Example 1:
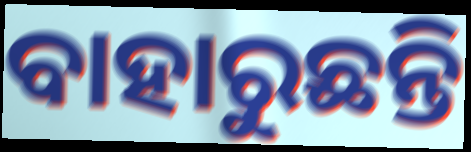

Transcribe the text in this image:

ବାହାରୁଛନ୍ତି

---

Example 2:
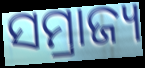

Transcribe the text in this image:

ସମ୍ରାଜ୍ୟ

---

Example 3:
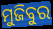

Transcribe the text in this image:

ମୁଜିବୁର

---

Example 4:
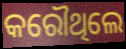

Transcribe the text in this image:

କରୌଥିଲେ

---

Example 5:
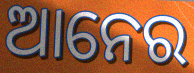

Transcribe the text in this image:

ଆନେର